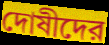
দোষীদের